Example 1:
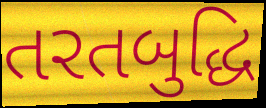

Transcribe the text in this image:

તરતબુદ્ધિ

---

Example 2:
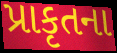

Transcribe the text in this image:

પ્રાકૃતના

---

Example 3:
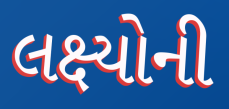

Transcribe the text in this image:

લક્ષ્યોની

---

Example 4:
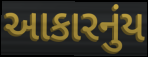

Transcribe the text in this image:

આકારનુંય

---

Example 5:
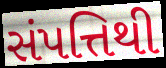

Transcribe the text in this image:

સંપત્તિથી